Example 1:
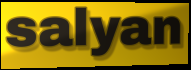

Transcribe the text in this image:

salyan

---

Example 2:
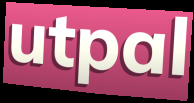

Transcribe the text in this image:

utpal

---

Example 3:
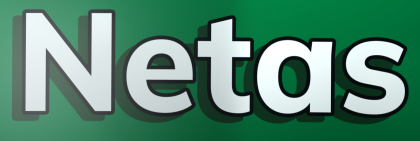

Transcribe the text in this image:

Netas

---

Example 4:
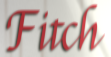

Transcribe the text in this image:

Fitch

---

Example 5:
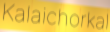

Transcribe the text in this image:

Kalaichorkal